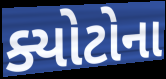
ક્યોટોના